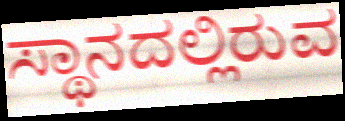
ಸ್ಥಾನದಲ್ಲಿರುವ